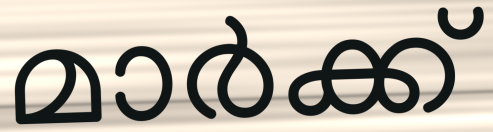
മാർക്ക്